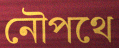
নৌপথে